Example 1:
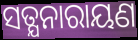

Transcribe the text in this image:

ସତ୍ଯନାରାୟଣ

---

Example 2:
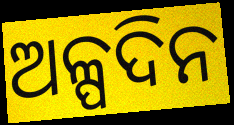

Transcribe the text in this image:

ଅଳ୍ପଦିନ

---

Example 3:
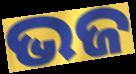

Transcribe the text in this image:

ଭଜ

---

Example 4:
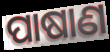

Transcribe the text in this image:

ପାଷାଣ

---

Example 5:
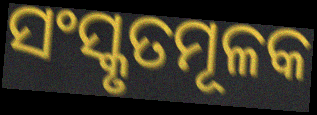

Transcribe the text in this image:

ସଂସ୍କୃତମୂଳକ